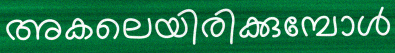
അകലെയിരിക്കുമ്പോൾ